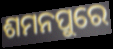
ଶମନପୁରେ